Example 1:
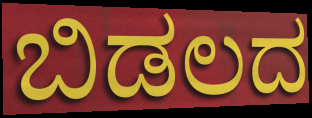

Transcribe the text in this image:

ಬಿಡಲದ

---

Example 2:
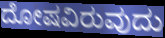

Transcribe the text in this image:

ದೋಷವಿರುವುದು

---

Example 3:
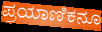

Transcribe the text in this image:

ಪ್ರಯಾಣಿಕನೂ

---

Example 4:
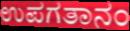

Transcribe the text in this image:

ಉಪಗತಾನಂ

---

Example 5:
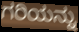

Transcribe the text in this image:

ಗರಿಯನ್ನು